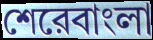
শেরেবাংলা